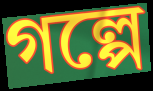
গল্পে